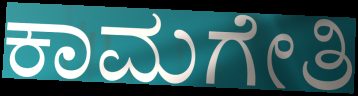
ಕಾಮಗೇತಿ